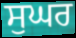
ਸੁਘਰ